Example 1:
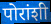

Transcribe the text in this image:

पोरांशी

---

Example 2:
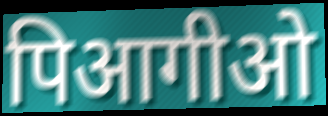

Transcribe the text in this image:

पिआगीओ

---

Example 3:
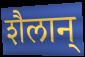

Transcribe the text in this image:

शैलान्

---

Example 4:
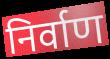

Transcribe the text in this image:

निर्वाण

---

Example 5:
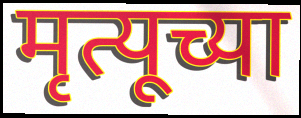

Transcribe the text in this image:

मृत्यूच्या